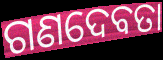
ଗଣଦେବତା